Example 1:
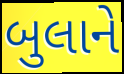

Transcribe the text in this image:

બુલાને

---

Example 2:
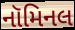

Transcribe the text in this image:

નૉમિનલ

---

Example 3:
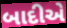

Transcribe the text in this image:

બાદીએ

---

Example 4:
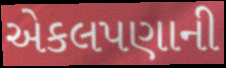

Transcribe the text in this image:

એકલપણાની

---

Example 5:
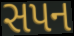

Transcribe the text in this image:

સપન